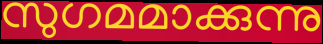
സുഗമമാക്കുന്നു